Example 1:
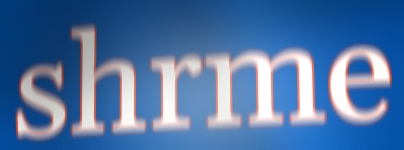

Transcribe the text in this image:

shrme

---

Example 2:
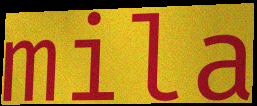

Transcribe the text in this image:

mila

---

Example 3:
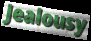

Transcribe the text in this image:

Jealousy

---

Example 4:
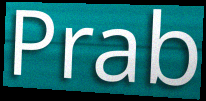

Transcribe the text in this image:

Prab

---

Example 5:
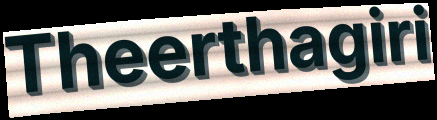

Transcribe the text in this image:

Theerthagiri